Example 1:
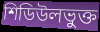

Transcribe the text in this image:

শিডিউলভুক্ত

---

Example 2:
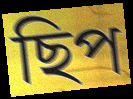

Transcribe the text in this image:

ছিপ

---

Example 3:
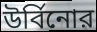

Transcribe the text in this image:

উর্বিনোর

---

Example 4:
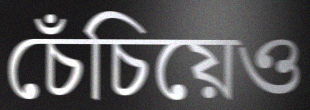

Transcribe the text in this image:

চেঁচিয়েও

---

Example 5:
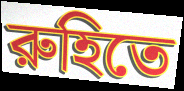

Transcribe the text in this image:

রুহিতে